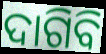
ଦାଗିବି